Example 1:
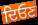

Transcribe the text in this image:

ਦਿਓਣ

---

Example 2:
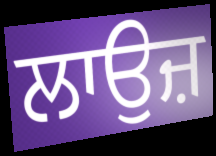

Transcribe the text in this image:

ਲਾਉਜ਼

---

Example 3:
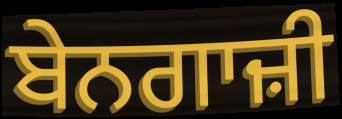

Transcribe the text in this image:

ਬੇਨਗਾਜ਼ੀ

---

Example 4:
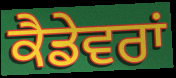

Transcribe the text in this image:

ਕੈਡੇਵਰਾਂ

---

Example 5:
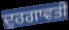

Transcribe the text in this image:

ਦੁਰਗਾਵਤੀ